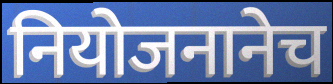
नियोजनानेच